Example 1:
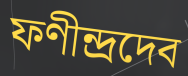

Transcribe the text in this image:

ফণীন্দ্রদেব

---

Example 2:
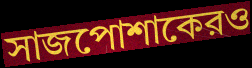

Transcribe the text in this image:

সাজপোশাকেরও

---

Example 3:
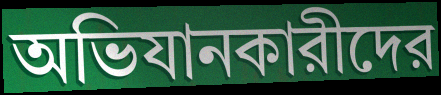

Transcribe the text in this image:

অভিযানকারীদের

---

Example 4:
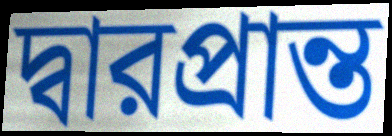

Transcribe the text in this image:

দ্বারপ্রান্ত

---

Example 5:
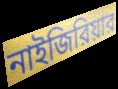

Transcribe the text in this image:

নাইজিরিয়ার